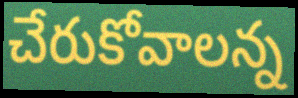
చేరుకోవాలన్న